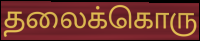
தலைக்கொரு